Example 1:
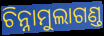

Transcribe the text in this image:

ଚିନ୍ନାମୁଲାଗଣ୍ଡ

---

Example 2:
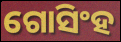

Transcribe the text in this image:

ଗୋସିଂହ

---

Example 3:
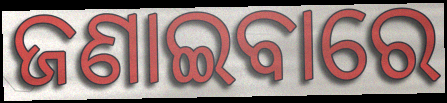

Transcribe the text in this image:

ଜଣାଇବାରେ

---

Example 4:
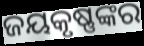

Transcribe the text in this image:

ଜୟକୃଷ୍ଣଙ୍କର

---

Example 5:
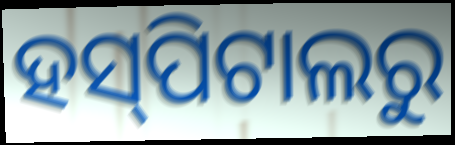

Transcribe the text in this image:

ହସ୍‍ପିଟାଲରୁ